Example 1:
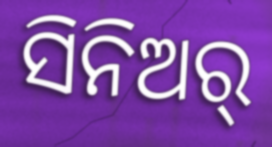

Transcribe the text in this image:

ସିନିଅର୍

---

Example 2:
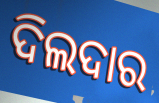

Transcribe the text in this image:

ଦିଲଦାର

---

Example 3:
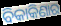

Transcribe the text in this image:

ବିକାକିଣାର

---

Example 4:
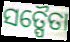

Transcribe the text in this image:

ସତ୍ପୈତା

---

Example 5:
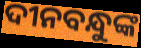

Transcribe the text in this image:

ଦୀନବନ୍ଧୁଙ୍କ